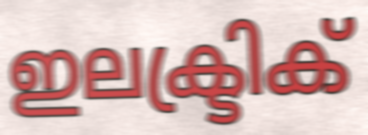
ഇലക്ട്രിക്